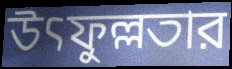
উৎফুল্লতার